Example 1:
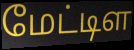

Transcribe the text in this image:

மேட்டிள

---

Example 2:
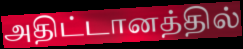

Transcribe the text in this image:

அதிட்டானத்தில்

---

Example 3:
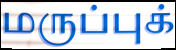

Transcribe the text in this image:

மருப்புக்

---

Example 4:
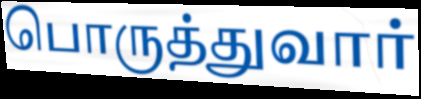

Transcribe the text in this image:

பொருத்துவார்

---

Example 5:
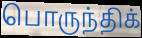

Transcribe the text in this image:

பொருந்திக்